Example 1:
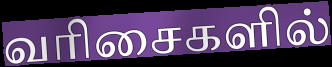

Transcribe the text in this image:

வரிசைகளில்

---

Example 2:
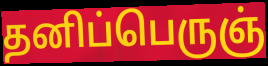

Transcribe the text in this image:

தனிப்பெருஞ்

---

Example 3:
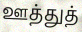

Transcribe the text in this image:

ஊத்துத்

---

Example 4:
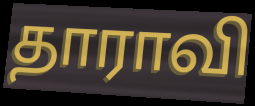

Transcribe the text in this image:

தாராவி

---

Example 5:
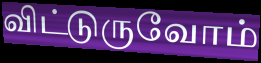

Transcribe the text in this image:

விட்டுருவோம்